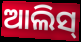
ଆଲିସ୍